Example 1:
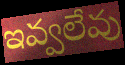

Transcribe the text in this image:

ఇవ్వలేవు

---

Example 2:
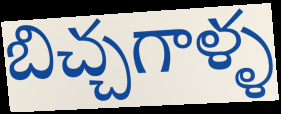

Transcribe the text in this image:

బిచ్చగాళ్ళ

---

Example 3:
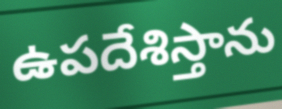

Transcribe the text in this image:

ఉపదేశిస్తాను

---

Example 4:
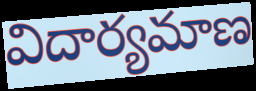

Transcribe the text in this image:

విదార్యమాణ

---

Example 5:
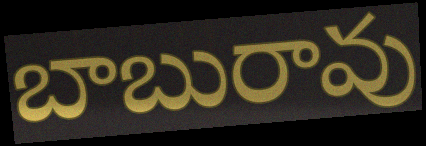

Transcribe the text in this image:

బాబురావు